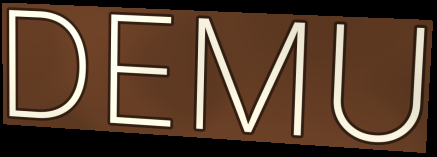
DEMU